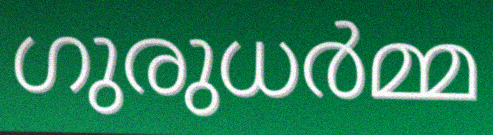
ഗുരുധർമ്മ